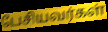
பேசியவர்கள்